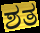
ಶತ